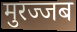
मुरज्जब